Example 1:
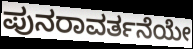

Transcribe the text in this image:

ಪುನರಾವರ್ತನೆಯೇ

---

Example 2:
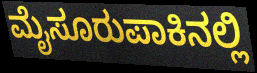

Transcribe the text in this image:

ಮೈಸೂರುಪಾಕಿನಲ್ಲಿ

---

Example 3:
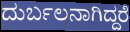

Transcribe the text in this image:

ದುರ್ಬಲನಾಗಿದ್ದರೆ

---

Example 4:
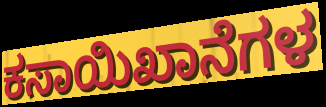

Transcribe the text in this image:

ಕಸಾಯಿಖಾನೆಗಳ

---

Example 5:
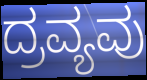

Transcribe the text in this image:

ದ್ರವ್ಯವು